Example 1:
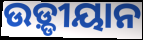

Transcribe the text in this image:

ଉଡ଼୍ଡୀୟାନ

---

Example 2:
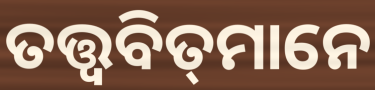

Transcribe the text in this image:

ତତ୍ତ୍ୱବିତ୍‌ମାନେ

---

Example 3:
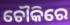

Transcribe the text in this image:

ଚୌକିରେ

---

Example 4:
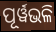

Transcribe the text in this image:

ପୂର୍ୱଭଳି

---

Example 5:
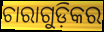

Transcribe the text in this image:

ଚାରାଗୁଡ଼ିକର